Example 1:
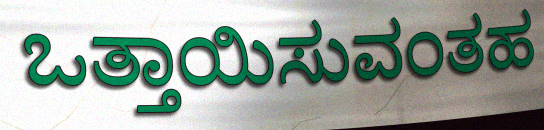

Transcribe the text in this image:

ಒತ್ತಾಯಿಸುವಂತಹ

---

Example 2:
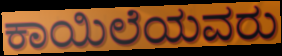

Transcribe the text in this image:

ಕಾಯಿಲೆಯವರು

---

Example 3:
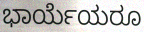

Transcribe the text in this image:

ಭಾರ್ಯೆಯರೂ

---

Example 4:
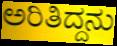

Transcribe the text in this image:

ಅರಿತಿದ್ದನು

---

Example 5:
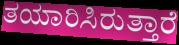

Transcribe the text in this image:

ತಯಾರಿಸಿರುತ್ತಾರೆ